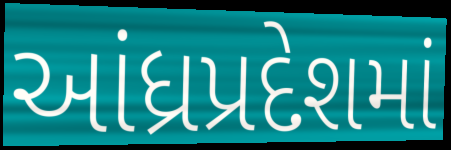
આંધ્રપ્રદેશમાં